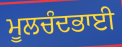
ਮੂਲਚੰਦਭਾਈ